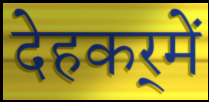
देहकर्में